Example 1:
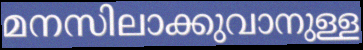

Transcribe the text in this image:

മനസിലാക്കുവാനുള്ള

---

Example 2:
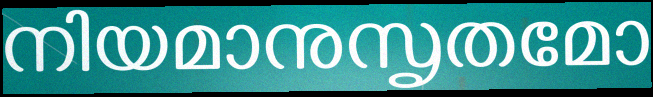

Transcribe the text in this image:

നിയമാനുസൃതമോ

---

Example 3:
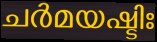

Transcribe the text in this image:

ചർമയഷ്ടിഃ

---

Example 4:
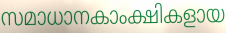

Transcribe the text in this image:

സമാധാനകാംക്ഷികളായ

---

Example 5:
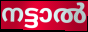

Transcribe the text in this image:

നട്ടാൽ